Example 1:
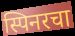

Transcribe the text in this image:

स्पिनरचा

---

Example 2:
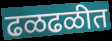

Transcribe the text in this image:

ढळढळीत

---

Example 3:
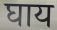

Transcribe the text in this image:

घाय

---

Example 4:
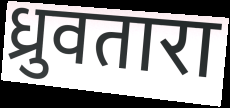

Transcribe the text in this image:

ध्रुवतारा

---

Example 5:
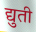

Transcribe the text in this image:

द्युती